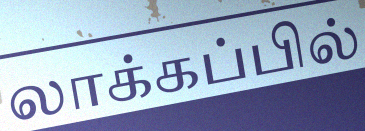
லாக்கப்பில்